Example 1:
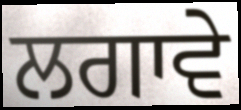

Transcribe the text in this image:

ਲਗਾਵੇ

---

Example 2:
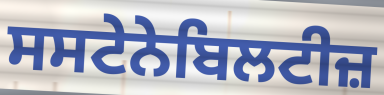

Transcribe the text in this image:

ਸਸਟੇਨੇਬਿਲਟੀਜ਼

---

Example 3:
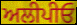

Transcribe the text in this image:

ਅਲੀਪੀਓ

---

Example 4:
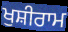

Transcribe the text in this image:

ਖੁਸ਼ੀਰਾਮ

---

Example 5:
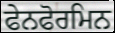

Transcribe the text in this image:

ਫੇਨਫੋਰਮਿਨ